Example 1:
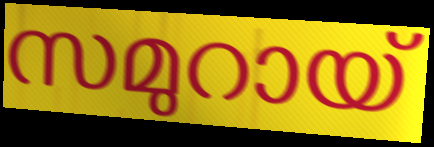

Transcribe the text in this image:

സമുറായ്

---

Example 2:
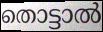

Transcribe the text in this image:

തൊട്ടാൽ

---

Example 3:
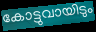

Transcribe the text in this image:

കോട്ടുവായിടും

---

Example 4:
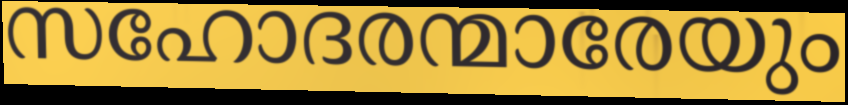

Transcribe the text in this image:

സഹോദരന്മാരേയും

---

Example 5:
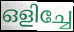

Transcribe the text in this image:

ഒളിച്ചേ